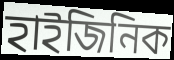
হাইজিনিক